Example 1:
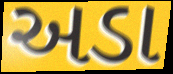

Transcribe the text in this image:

અડા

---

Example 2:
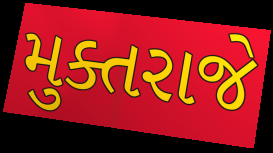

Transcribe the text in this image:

મુક્તરાજે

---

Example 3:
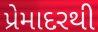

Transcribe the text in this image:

પ્રેમાદરથી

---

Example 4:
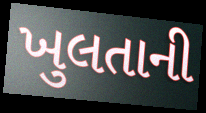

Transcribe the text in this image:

ખુલતાની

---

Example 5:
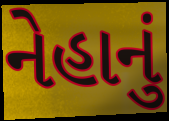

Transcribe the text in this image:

નેહાનું